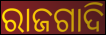
ରାଜଗାଦି